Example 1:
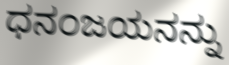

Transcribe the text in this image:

ಧನಂಜಯನನ್ನು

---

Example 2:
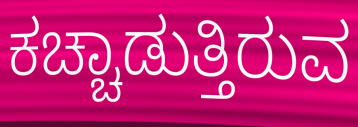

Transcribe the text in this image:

ಕಚ್ಚಾಡುತ್ತಿರುವ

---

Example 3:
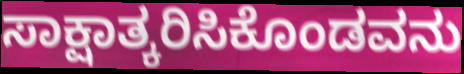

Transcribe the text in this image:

ಸಾಕ್ಷಾತ್ಕರಿಸಿಕೊಂಡವನು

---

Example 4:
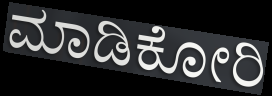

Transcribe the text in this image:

ಮಾಡಿಕೋರಿ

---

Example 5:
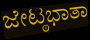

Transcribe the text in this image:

ಜೇಟ್ಠಭಾತಾ